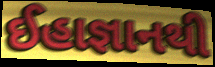
ઈહાજ્ઞાનથી